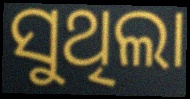
ସୁଥିଲା